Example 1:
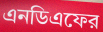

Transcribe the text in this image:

এনডিএফের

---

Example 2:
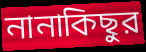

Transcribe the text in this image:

নানাকিছুর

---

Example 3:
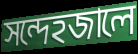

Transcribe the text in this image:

সন্দেহজালে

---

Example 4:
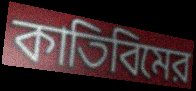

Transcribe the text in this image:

কাতিবিমের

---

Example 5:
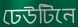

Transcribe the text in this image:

ঢেউটিনে